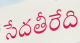
సేదతీరేది